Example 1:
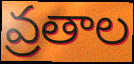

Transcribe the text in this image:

వ్రతాల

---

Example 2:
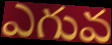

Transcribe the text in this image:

ఎగువ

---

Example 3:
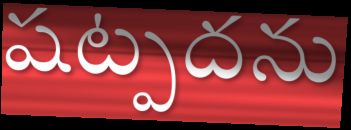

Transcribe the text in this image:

షట్పదను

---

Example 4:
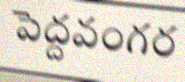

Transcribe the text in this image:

పెద్దవంగర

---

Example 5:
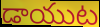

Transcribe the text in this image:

డాయుట